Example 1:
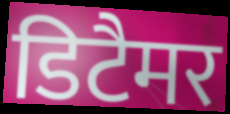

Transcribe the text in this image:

डिटैमर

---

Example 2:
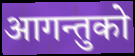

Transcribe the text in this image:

आगन्तुको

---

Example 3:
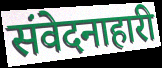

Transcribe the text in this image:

संवेदनाहारी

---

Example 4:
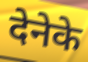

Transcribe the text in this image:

देनेके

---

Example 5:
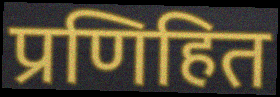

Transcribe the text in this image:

प्रणिहित